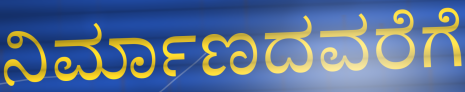
ನಿರ್ಮಾಣದವರೆಗೆ